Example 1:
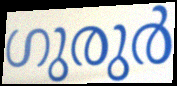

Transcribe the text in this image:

ഗുരുർ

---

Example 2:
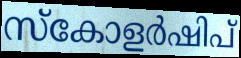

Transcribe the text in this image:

സ്കോളർഷിപ്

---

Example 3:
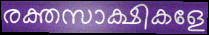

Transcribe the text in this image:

രക്തസാക്ഷികളേ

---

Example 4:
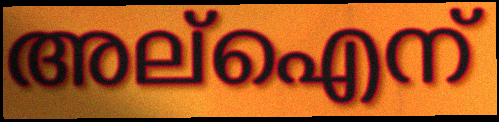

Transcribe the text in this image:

അല്ഐന്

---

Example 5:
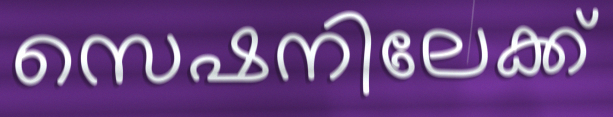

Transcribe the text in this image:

സെഷനിലേക്ക്